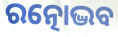
ରତ୍ନୋଦ୍ଭବ